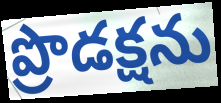
ప్రొడక్షను